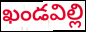
ఖండవిల్లి